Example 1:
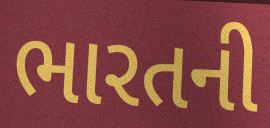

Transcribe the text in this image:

ભારતની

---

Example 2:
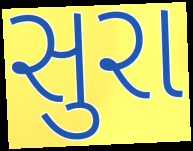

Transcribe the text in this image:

સુરા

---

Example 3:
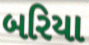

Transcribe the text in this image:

બરિયા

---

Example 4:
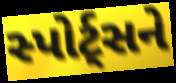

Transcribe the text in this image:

સ્પોર્ટ્સને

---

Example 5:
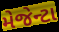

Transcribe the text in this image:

મેજેન્ટા